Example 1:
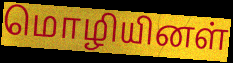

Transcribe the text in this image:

மொழியினள்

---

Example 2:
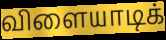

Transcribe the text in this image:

விளையாடிக்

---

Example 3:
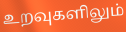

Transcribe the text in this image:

உறவுகளிலும்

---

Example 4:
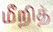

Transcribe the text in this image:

மீறித்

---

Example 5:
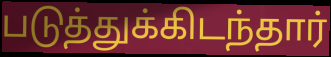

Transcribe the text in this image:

படுத்துக்கிடந்தார்